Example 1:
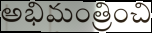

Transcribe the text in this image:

అభిమంత్రించి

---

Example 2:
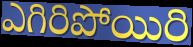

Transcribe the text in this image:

ఎగిరిపోయిరి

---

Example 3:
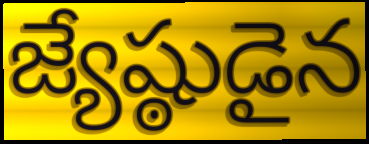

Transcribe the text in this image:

జ్యేష్ఠుడైన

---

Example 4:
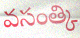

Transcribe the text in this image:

వసంత్కి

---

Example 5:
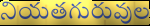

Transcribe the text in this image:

నియతగురువుల